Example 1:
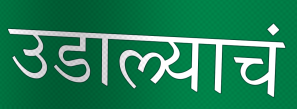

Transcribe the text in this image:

उडाल्याचं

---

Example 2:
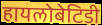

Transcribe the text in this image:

हायलोबेटिडी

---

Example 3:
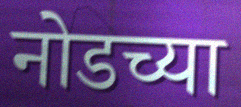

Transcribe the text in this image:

नोडच्या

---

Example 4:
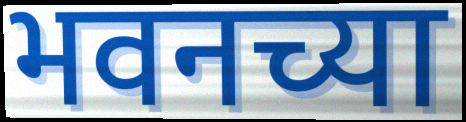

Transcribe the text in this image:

भवनच्या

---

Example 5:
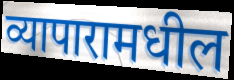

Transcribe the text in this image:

व्यापारामधील